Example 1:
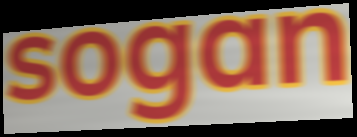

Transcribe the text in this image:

sogan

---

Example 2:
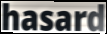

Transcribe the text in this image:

hasard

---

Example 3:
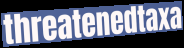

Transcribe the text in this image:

threatenedtaxa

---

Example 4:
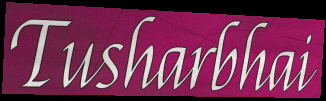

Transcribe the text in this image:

Tusharbhai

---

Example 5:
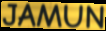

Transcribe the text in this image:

JAMUN